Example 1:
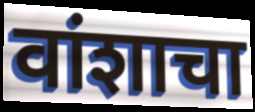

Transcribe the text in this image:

वांशाचा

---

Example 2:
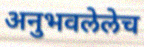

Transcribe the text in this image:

अनुभवलेलेच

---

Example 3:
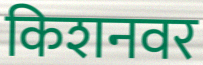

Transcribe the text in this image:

किशनवर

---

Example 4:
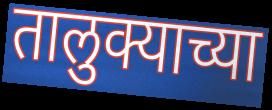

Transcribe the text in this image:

तालुक्याच्या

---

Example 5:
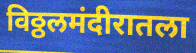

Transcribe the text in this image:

विठ्ठलमंदीरातला